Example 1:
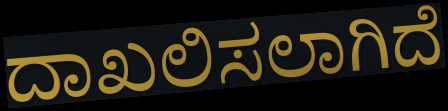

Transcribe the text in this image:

ದಾಖಲಿಸಲಾಗಿದೆ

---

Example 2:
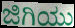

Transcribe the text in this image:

ಜಿಗಿಯು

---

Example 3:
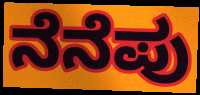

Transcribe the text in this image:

ನೆನೆಪು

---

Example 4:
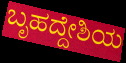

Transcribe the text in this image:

ಬೃಹದ್ದೇಶಿಯ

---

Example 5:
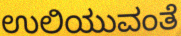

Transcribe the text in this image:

ಉಲಿಯುವಂತೆ